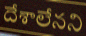
దేశాలేనని